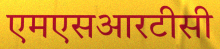
एमएसआरटीसी